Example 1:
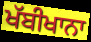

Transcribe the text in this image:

ਖੱਬੀਖਾਨਾ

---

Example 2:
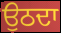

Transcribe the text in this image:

ਉਠਦਾ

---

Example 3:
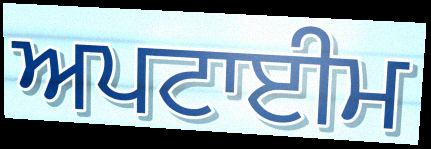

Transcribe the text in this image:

ਅਪਟਾਈਮ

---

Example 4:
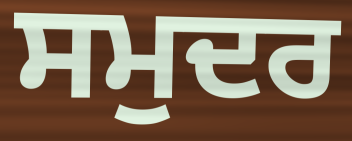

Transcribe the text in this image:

ਸਮੁਦਰ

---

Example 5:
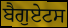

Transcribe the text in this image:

ਬੈਗੁਏਟਸ